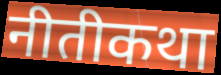
नीतीकथा